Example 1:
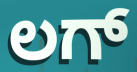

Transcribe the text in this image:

ಲಗ್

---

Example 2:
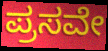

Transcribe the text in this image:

ಪ್ರಸವೇ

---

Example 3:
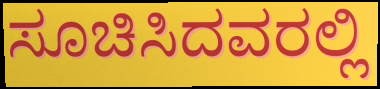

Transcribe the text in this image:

ಸೂಚಿಸಿದವರಲ್ಲಿ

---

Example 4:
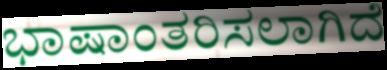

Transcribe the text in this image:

ಭಾಷಾಂತರಿಸಲಾಗಿದೆ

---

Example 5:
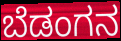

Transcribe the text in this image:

ಬೆಡಂಗನ